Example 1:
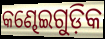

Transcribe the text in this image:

କଣ୍ଢେଇଗୁଡ଼ିକ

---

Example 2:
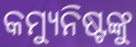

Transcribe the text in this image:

କମ୍ୟୁନିଷ୍ଟଙ୍କୁ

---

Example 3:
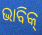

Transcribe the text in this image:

ଭାବିକ୍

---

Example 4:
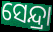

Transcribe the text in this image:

ସେନ୍ଦ୍ରା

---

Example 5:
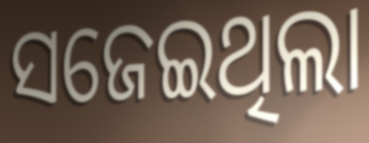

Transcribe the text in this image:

ସଜେଇଥିଲା